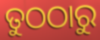
ତୁଠଠାରୁ